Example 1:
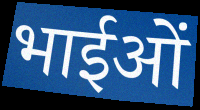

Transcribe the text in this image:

भाईओं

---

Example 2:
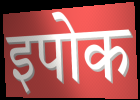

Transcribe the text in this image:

इपोक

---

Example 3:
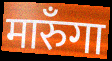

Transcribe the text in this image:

मारुँगा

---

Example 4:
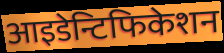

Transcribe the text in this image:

आइडेन्टिफिकेशन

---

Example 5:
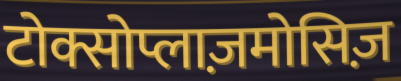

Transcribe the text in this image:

टोक्सोप्लाज़मोसिज़